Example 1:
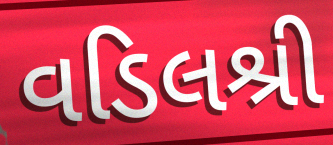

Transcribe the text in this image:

વડિલશ્રી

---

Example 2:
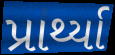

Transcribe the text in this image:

પ્રાર્થ્યા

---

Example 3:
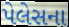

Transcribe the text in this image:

પેલેસના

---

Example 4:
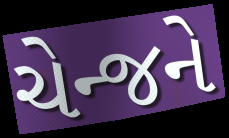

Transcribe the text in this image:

ચેન્જને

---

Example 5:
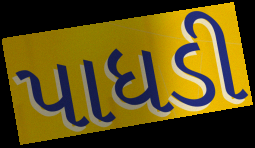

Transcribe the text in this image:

પાધડી